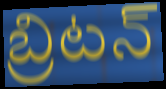
బ్రిటన్